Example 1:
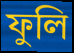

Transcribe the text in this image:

ফুলি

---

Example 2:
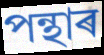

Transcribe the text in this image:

পন্থাৰ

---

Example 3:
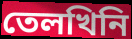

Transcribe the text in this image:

তেলখিনি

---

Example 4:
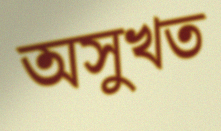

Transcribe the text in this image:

অসুখত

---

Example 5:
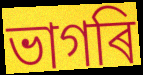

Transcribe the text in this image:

ভাগৰি